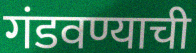
गंडवण्याची